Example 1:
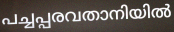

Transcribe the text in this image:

പച്ചപ്പരവതാനിയിൽ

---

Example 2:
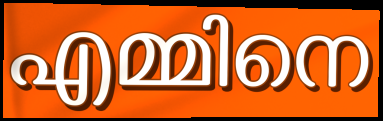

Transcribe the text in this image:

എമ്മിനെ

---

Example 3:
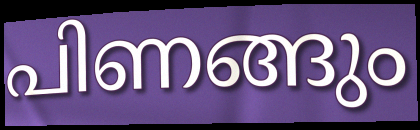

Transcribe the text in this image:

പിണങ്ങും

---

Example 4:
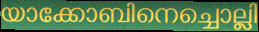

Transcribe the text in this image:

യാക്കോബിനെച്ചൊല്ലി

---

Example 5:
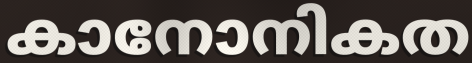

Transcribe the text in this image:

കാനോനികത